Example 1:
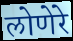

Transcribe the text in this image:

लोणेरे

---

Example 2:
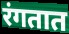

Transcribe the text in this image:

रंगतात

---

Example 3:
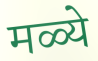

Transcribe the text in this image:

मळ्ये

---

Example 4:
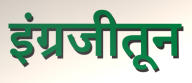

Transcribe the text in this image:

इंग्रजीतून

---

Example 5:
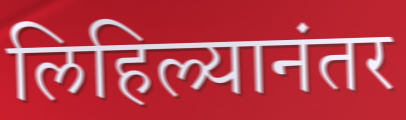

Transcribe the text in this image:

लिहिल्यानंतर